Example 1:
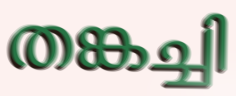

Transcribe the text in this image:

തങ്കച്ചി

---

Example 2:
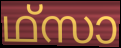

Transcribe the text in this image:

ഥ്സാ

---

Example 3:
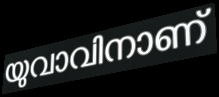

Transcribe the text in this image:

യുവാവിനാണ്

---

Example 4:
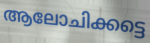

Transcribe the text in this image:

ആലോചിക്കട്ടെ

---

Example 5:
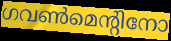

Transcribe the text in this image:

ഗവൺമെന്റിനോ